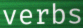
verbs